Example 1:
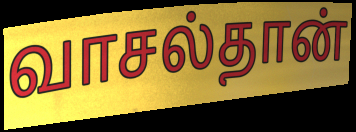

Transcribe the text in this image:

வாசல்தான்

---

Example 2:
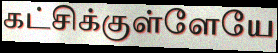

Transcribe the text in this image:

கட்சிக்குள்ளேயே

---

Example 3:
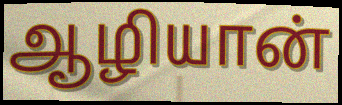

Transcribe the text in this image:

ஆழியான்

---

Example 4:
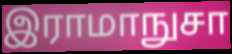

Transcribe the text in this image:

இராமாநுசா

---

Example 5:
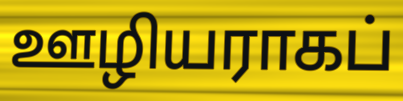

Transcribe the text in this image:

ஊழியராகப்